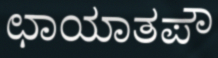
ಛಾಯಾತಪೌ